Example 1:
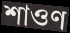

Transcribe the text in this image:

শাওণ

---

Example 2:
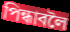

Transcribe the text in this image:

পিন্ধাবলৈ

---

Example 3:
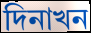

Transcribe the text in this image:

দিনাখন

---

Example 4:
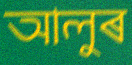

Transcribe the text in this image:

আলুৰ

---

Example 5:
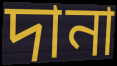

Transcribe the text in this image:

দানা